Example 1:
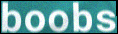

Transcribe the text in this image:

boobs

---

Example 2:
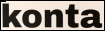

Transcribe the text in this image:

konta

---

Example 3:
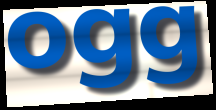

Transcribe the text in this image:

ogg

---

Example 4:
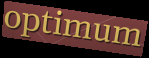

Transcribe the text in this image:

optimum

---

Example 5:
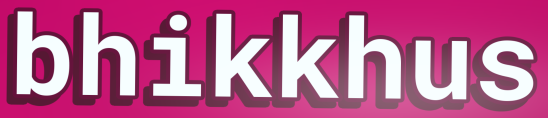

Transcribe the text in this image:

bhikkhus